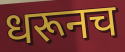
धरूनच